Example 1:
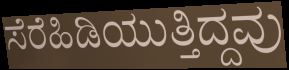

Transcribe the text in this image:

ಸೆರೆಹಿಡಿಯುತ್ತಿದ್ದವು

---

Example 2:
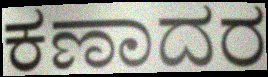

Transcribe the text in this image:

ಕಣಾದರ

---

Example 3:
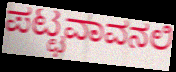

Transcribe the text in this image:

ಪಟ್ಟವಾವನಲಿ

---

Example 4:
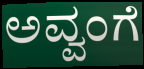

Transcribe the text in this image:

ಅವ್ವಂಗೆ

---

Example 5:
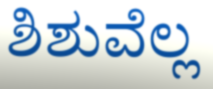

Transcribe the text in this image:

ಶಿಶುವೆಲ್ಲ